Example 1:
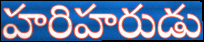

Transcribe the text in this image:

హరిహరుడు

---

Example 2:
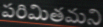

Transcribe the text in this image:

పరిమితమని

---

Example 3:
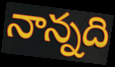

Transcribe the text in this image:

నాన్నది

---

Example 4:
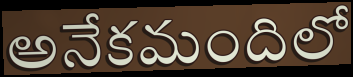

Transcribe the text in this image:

అనేకమందిలో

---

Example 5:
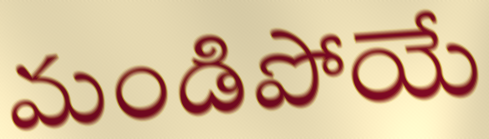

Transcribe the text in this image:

మండిపోయే